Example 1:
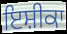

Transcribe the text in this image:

ਇਸ਼ੀਕਾ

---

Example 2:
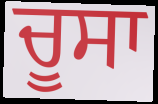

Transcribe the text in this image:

ਚੂਸਾ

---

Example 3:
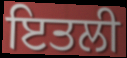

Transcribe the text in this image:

ਇਤਲੀ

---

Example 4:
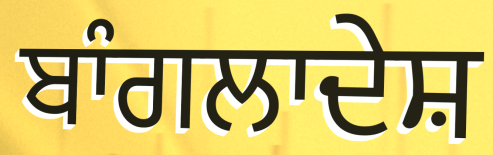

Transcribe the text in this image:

ਬਾੰਗਲਾਦੇਸ਼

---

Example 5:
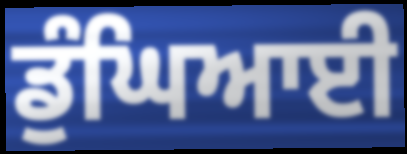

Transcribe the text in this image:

ਡੁੰਘਿਆਈ